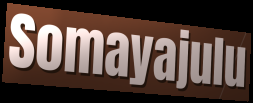
Somayajulu